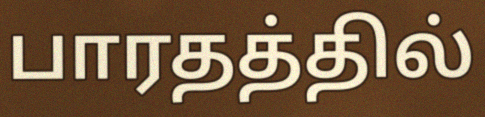
பாரதத்தில்